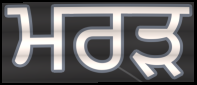
ਮਰੜ